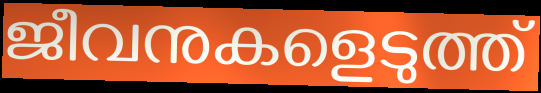
ജീവനുകളെടുത്ത്